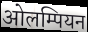
ओलम्पियन